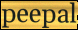
peepal